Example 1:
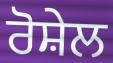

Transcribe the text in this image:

ਰੋਸ਼ੇਲ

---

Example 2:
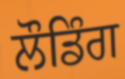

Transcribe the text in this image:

ਲੌਡਿੰਗ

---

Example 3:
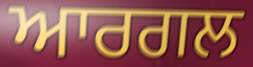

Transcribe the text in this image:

ਆਰਗਲ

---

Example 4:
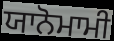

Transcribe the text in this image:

ਯਾਨੋਮਾਮੀ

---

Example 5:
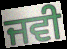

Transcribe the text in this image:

ਜਵੀ